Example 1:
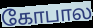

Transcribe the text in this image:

கோபால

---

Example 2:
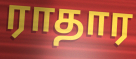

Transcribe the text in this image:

ராதார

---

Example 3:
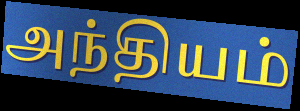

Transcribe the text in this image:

அந்தியம்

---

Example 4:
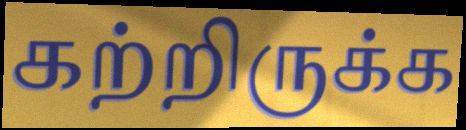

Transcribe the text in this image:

கற்றிருக்க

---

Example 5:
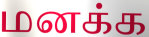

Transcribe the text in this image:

மனக்க